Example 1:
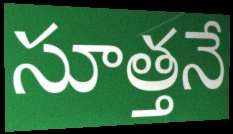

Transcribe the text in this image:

సూత్తనే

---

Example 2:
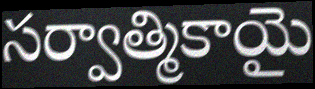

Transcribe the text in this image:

సర్వాత్మికాయై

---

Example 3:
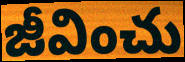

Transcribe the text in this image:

జీవించు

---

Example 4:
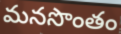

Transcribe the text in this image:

మనసొంతం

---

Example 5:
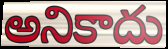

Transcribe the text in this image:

అనికాదు